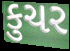
કુચર